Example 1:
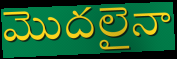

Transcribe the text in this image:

మొదలైనా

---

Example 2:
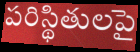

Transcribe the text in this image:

పరిస్థితులపై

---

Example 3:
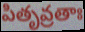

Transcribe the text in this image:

పితృవ్రతాః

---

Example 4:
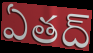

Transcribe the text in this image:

ఏతద్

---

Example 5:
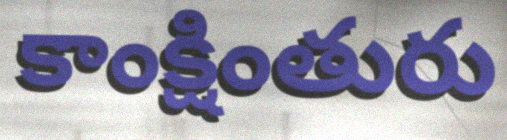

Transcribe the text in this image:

కాంక్షింతురు